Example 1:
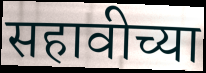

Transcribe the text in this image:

सहावीच्या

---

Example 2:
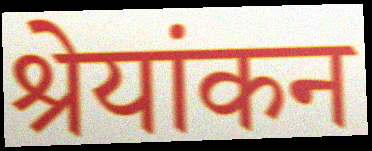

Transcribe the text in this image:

श्रेयांकन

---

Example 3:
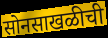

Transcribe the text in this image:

सोनसाखळीची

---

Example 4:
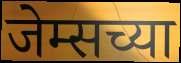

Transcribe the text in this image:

जेम्सच्या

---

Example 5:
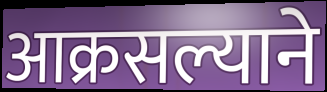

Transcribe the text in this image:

आक्रसल्याने